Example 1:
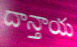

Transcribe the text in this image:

దాన్తాయ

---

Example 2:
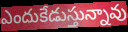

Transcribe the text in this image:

ఎందుకేడుస్తున్నావు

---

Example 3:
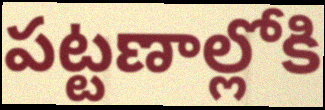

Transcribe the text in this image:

పట్టణాల్లోకి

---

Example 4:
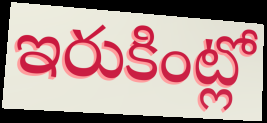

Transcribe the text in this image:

ఇరుకింట్లో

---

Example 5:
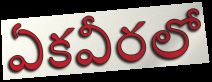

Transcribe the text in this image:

ఏకవీరలో